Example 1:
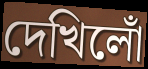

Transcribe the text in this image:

দেখিলোঁ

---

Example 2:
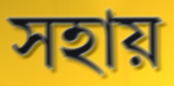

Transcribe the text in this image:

সহায়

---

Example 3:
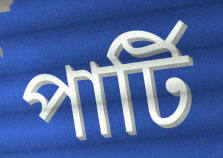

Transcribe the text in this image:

পাৰ্টি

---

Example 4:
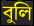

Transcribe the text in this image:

বুলি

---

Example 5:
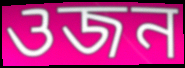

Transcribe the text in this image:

ওজন